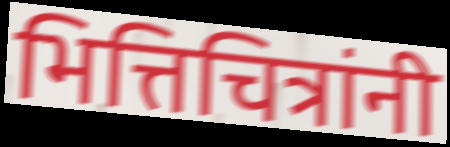
भित्तिचित्रांनी